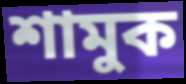
শামুক